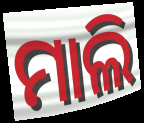
ମାଲି